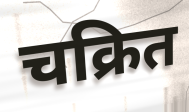
चक्रित